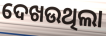
ଦେଖଉଥିଲା